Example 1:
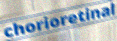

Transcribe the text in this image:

chorioretinal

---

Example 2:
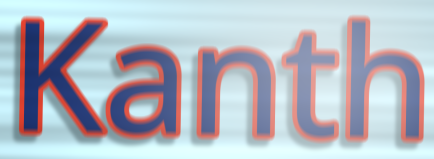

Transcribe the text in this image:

Kanth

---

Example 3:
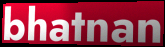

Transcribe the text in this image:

bhatnan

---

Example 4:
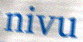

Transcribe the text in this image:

nivu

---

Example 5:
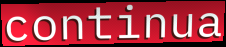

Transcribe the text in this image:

continua